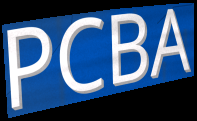
PCBA